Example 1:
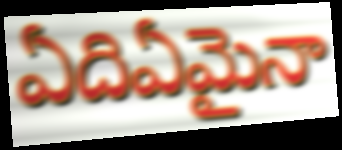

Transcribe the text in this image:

ఏదిఏమైనా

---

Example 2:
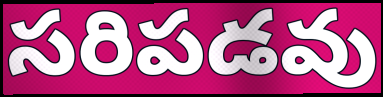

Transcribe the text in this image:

సరిపడవు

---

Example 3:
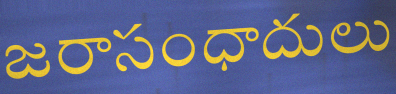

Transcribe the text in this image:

జరాసంధాదులు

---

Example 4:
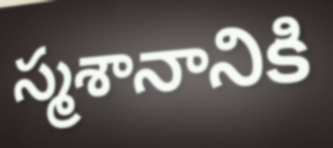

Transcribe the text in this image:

స్మశానానికి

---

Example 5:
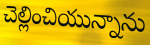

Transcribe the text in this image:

చెల్లించియున్నాను